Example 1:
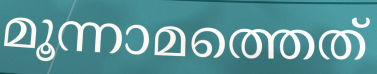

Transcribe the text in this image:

മൂന്നാമത്തെത്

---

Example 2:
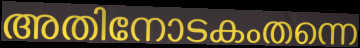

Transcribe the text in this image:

അതിനോടകംതന്നെ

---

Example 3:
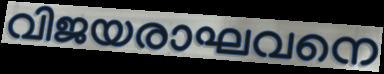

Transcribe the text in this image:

വിജയരാഘവനെ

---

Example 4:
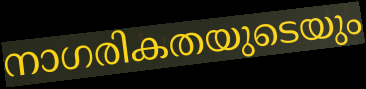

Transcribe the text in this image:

നാഗരികതയുടെയും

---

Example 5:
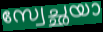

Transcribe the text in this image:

സ്വേച്ഛയാ